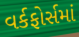
વર્કફોર્સમાં